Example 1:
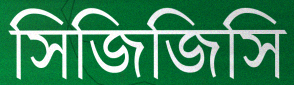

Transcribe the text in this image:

সিজিজিসি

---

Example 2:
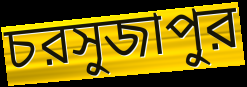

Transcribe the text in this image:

চরসুজাপুর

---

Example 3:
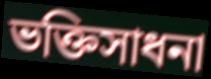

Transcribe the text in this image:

ভক্তিসাধনা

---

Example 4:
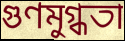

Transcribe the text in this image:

গুণমুগ্ধতা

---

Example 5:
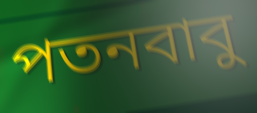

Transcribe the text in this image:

পতনবাবু